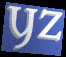
yz